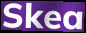
Skea